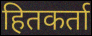
हितकर्ता